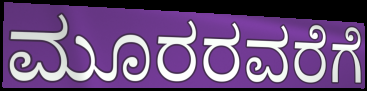
ಮೂರರವರೆಗೆ